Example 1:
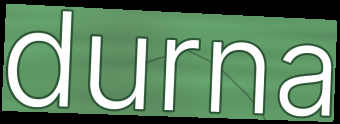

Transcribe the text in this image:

durna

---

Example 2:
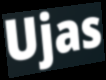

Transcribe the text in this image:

Ujas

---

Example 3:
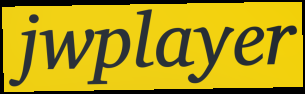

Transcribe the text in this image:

jwplayer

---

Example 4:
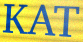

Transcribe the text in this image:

KAT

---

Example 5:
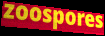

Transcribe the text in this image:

zoospores